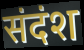
संदंश